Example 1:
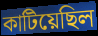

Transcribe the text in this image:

কাটিয়েছিল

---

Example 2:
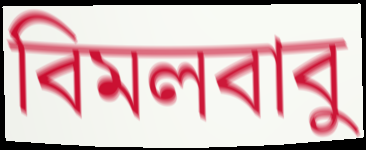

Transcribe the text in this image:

বিমলবাবু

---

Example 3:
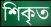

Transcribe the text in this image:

শিকৃত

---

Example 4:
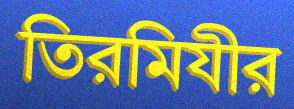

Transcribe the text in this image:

তিরমিযীর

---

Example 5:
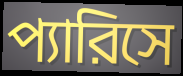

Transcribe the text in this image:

প্যারিসে